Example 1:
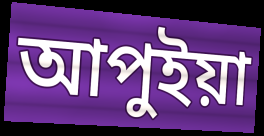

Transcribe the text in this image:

আপুইয়া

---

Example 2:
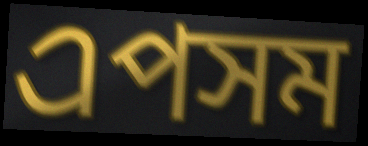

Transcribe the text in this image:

এপসম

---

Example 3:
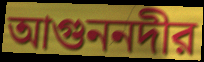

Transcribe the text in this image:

আগুননদীর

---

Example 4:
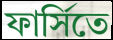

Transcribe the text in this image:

ফার্সিতে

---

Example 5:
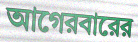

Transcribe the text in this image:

আগেরবারের